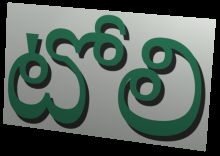
టోలి